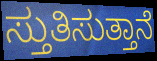
ಸ್ತುತಿಸುತ್ತಾನೆ